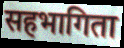
सहभागिता